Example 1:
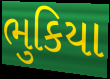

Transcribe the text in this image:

ભુકિયા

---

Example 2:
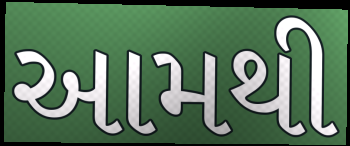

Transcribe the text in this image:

આમથી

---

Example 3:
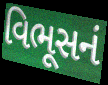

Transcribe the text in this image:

વિભૂસનં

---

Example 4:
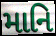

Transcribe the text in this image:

માનિ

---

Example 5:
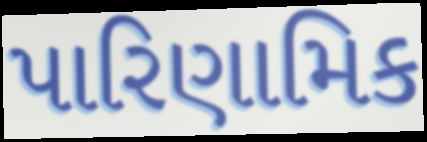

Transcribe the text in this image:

પારિણામિક